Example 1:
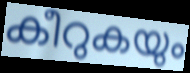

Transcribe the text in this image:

കീറുകയും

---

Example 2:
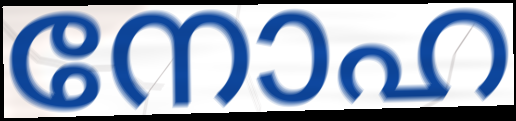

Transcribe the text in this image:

നോഹ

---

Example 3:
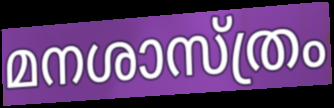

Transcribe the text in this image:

മനശാസ്ത്രം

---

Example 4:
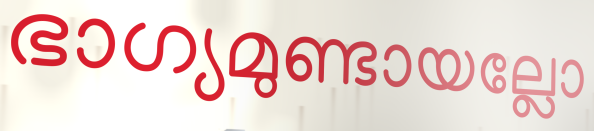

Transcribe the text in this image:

ഭാഗ്യമുണ്ടായല്ലോ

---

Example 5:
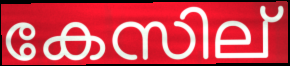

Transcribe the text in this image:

കേസില്